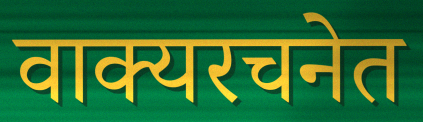
वाक्यरचनेत